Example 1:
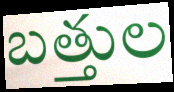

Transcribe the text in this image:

బత్తుల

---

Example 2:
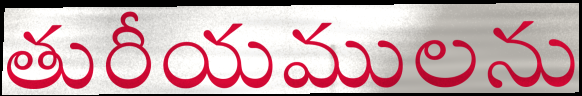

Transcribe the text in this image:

తురీయములను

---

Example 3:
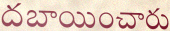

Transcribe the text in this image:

దబాయించారు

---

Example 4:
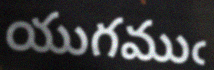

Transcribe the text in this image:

యుగముఁ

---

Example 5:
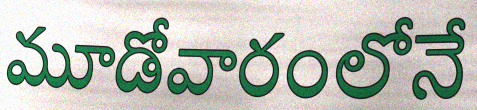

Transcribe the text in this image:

మూడోవారంలోనే